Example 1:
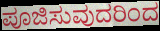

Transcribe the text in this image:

ಪೂಜಿಸುವುದರಿಂದ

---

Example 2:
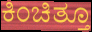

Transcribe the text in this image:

ಕಿಂಚಿತ್ತೂ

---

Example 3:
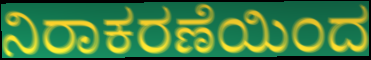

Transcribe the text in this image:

ನಿರಾಕರಣೆಯಿಂದ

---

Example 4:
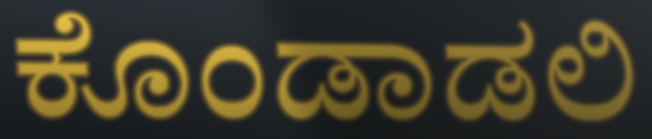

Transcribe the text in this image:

ಕೊಂಡಾಡಲಿ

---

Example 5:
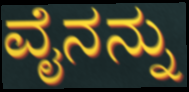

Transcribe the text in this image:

ವೈನನ್ನು